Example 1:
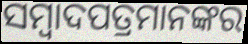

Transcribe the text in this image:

ସମ୍ୱାଦପତ୍ରମାନଙ୍କର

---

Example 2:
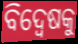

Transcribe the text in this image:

ବିଦ୍ବେଷକୁ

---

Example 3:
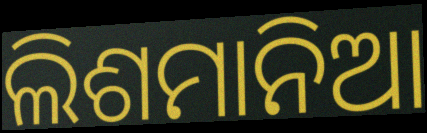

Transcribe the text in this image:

ଲିଶମାନିଆ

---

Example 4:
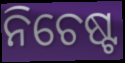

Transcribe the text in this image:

ନିଚେଷ୍ଟ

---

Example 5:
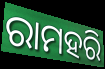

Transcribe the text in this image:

ରାମହରି